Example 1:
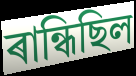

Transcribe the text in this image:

ৰান্ধিছিল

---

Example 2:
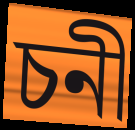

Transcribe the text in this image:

চনী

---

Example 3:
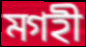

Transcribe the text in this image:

মগহী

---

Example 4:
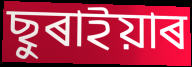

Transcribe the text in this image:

ছুৰাইয়াৰ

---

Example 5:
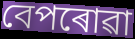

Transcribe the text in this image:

বেপৰোৱা